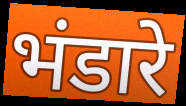
भंडारे